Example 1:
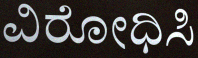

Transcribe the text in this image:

ವಿರೋಧಿಸಿ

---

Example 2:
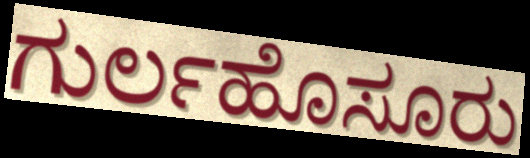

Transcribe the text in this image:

ಗುರ್ಲಹೊಸೂರು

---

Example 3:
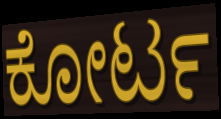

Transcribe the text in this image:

ಕೋರ್ಟ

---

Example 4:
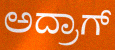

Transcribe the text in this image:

ಅದ್ರಾಗ್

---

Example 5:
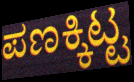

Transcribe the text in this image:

ಪಣಕ್ಕಿಟ್ಟ